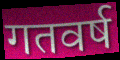
गतवर्ष